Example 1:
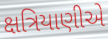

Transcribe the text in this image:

ક્ષત્રિયાણીએ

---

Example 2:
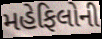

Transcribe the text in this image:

મહેફિલોની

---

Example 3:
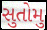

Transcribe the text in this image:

સુતોમુ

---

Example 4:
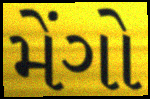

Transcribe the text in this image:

મેંગો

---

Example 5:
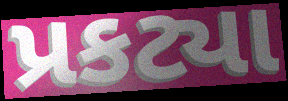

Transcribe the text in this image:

પ્રકટ્યા